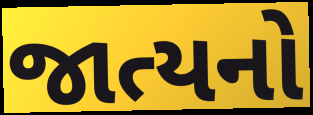
જાત્યનો